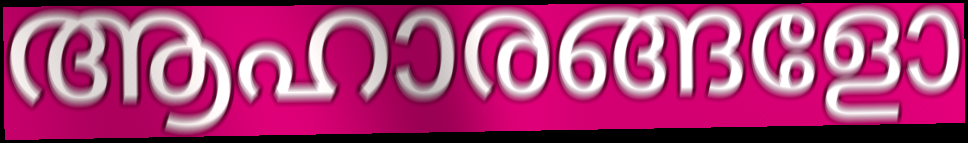
ആഹാരങ്ങളോ